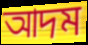
আদম